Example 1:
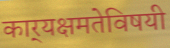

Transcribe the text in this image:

कार्यक्षमतेविषयी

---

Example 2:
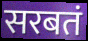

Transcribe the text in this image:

सरबतं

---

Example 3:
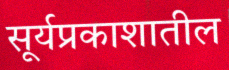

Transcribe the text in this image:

सूर्यप्रकाशातील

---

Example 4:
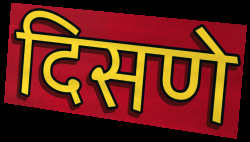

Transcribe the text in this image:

दिसणे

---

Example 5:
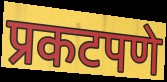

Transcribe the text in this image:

प्रकटपणे